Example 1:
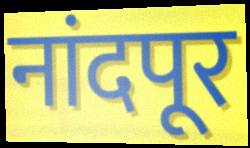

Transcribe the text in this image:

नांदपूर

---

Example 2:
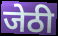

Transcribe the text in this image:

जेठी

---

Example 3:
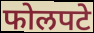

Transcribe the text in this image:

फोलपटे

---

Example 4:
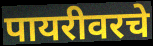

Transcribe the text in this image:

पायरीवरचे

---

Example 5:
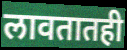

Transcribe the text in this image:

लावतातही